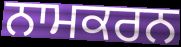
ਨਾਮਕਰਨ